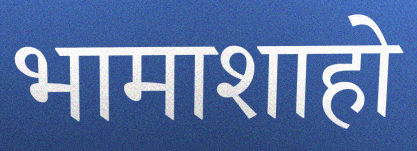
भामाशाहो